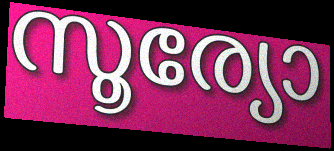
സൂര്യോ